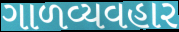
ગાળવ્યવહાર